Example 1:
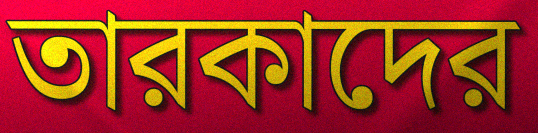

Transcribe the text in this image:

তারকাদের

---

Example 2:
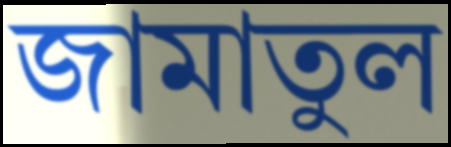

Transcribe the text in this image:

জামাতুল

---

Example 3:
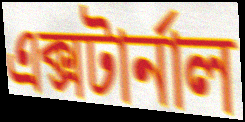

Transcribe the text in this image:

এক্সটার্নাল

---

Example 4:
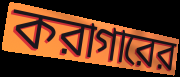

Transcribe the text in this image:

করাগারের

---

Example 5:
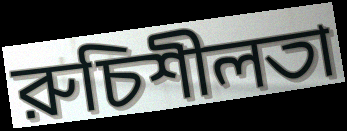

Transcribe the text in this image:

রুচিশীলতা